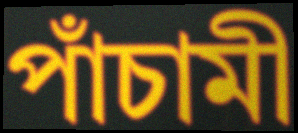
পাঁচামী